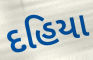
દહિયા